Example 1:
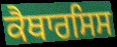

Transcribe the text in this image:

ਕੈਥਾਰਸਿਸ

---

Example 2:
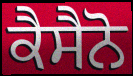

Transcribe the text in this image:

ਕੈਸੈਨੋ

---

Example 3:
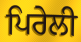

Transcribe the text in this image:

ਪਿਰੇਲੀ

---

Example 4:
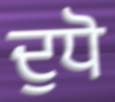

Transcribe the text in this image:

ਦੁਧੋ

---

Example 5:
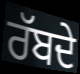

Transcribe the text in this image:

ਰੱਬਦੇ